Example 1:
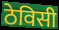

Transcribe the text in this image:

ठेविसी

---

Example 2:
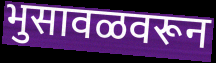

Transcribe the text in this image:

भुसावळवरून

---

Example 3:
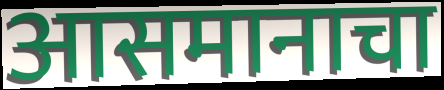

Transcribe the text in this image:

आसमानाचा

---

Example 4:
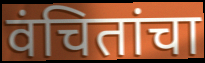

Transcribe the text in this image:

वंचितांचा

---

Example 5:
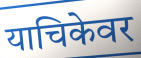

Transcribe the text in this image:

याचिकेवर